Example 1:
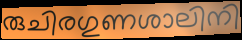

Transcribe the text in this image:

രുചിരഗുണശാലിനി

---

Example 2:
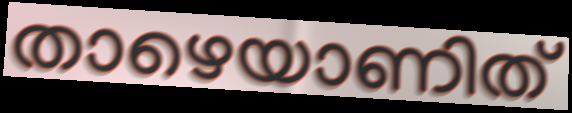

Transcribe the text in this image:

താഴെയാണിത്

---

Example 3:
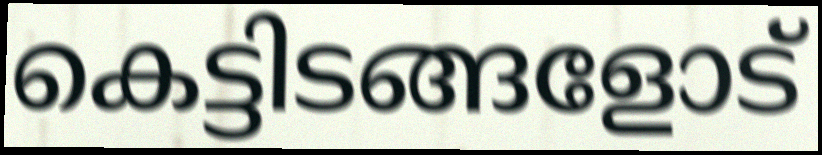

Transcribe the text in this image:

കെട്ടിടങ്ങളോട്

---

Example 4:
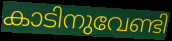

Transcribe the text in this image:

കാടിനുവേണ്ടി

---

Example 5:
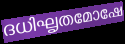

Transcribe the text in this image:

ദധിഘൃതമോഷേ